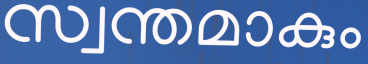
സ്വന്തമാകും